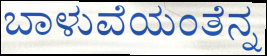
ಬಾಳುವೆಯಂತೆನ್ನ